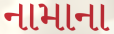
નામાના